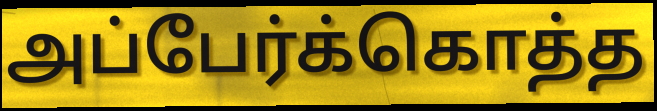
அப்பேர்க்கொத்த